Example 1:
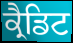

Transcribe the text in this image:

ਕ੍ਰੈਡਿਟ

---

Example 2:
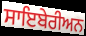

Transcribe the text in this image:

ਸਾਇਬੇਰੀਅਨ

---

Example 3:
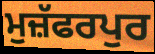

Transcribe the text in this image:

ਮੁਜ਼ੱਫਰਪੁਰ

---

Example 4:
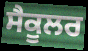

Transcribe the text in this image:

ਸੈਕੂਲਰ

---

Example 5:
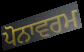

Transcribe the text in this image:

ਪੋਨਾਵਰਮ